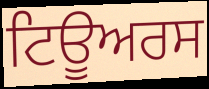
ਟਿਊਅਰਸ